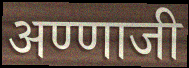
अण्णाजी